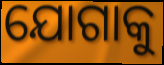
ଯୋଗାକୁ